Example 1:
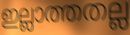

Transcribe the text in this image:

ഇല്ലാത്തതല്ല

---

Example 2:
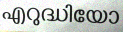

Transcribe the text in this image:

എറുദ്ധിയോ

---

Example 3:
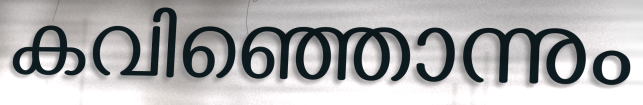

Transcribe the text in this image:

കവിഞ്ഞൊന്നും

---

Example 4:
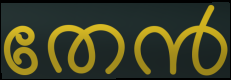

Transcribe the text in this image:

തേൻ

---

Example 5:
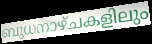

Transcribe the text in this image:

ബുധനാഴ്ചകളിലും